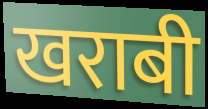
खराबी